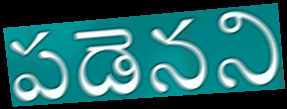
పడెనని